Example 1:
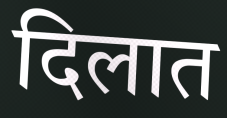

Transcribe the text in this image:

दिलात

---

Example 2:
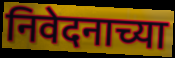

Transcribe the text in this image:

निवेदनाच्या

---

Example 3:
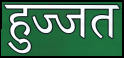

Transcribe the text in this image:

हुज्जत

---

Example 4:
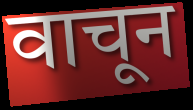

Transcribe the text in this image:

वाचून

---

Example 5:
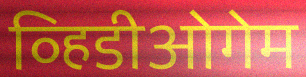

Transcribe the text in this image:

व्हिडीओगेम